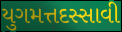
યુગમત્તદસ્સાવી